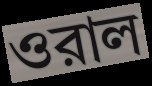
ওরাল